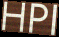
HPI